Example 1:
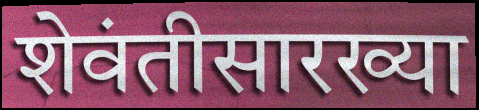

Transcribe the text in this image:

शेवंतीसारख्या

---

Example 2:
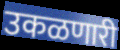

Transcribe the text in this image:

उकळणारी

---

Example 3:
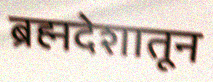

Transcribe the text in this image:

ब्रह्मदेशातून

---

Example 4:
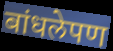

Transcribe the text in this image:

बांधलेपण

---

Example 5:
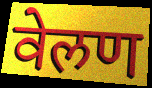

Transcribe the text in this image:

वेलण